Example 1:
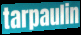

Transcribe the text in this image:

tarpaulin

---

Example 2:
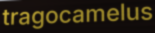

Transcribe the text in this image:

tragocamelus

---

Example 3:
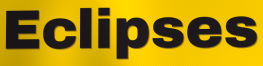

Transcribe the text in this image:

Eclipses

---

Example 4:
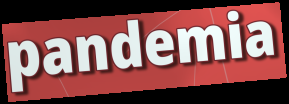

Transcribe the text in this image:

pandemia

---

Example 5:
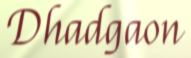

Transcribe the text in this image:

Dhadgaon